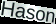
Hason